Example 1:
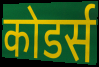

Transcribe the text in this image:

कोडर्स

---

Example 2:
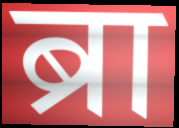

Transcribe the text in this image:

ब्रा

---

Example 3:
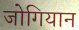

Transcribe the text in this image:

जोगियान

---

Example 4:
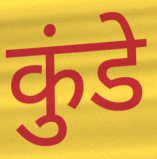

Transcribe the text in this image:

कुंडे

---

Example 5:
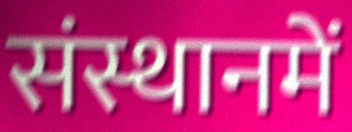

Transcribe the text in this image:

संस्थानमें